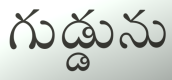
గుడ్డును